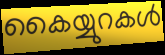
കൈയ്യുറകൾ